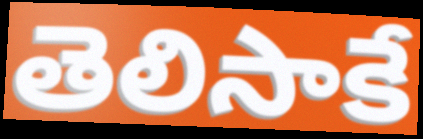
తెలిసాకే